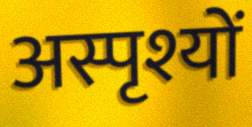
अस्पृश्यों